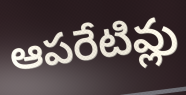
ఆపరేటివ్లు